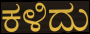
ಕಳಿದು